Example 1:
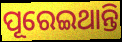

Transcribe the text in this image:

ପୂରେଇଥାନ୍ତି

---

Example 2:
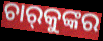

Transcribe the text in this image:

ଚାର୍‌କୁଙ୍କର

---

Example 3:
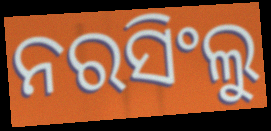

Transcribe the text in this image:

ନରସିଂଲୁ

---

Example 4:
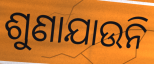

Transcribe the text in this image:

ଶୁଣାଯାଉନି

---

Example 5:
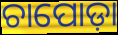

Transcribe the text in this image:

ଚାପୋଡ଼ା